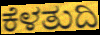
ಕೆಳತುದಿ